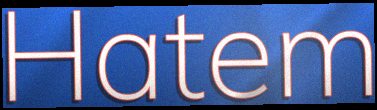
Hatem